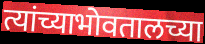
त्यांच्याभोवतालच्या